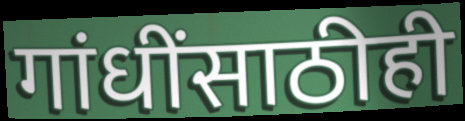
गांधींसाठीही